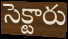
సెక్టారు